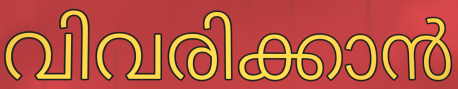
വിവരിക്കാൻ